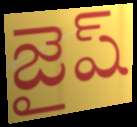
జైష్